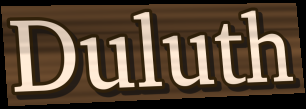
Duluth